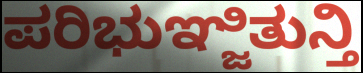
ಪರಿಭುಞ್ಜಿತುನ್ತಿ